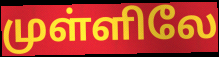
முள்ளிலே